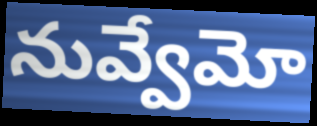
నువ్వేమో